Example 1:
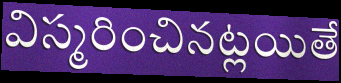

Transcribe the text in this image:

విస్మరించినట్లయితే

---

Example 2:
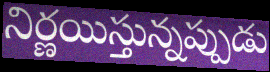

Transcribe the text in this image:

నిర్ణయిస్తున్నప్పుడు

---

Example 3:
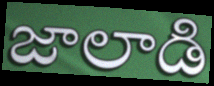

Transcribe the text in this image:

జాలాడి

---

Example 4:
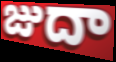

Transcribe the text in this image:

జుదా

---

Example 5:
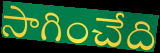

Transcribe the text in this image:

సాగించేది